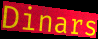
Dinars